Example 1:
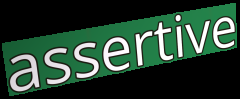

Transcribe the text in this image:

assertive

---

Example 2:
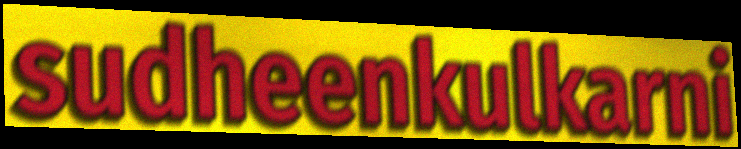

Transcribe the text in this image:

sudheenkulkarni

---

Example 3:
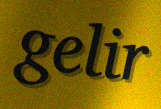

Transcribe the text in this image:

gelir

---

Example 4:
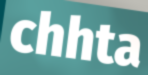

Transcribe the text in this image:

chhta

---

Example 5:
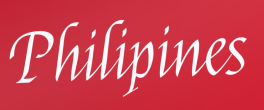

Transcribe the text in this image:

Philipines